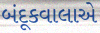
બંદૂકવાલાએ